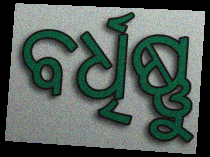
ବର୍ଧିଷ୍ଣୁ